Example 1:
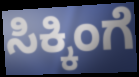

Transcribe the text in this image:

ಸಿಕ್ಕಿಂಗೆ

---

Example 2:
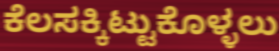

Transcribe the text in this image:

ಕೆಲಸಕ್ಕಿಟ್ಟುಕೊಳ್ಳಲು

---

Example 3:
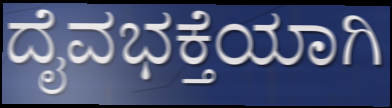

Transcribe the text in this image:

ದೈವಭಕ್ತೆಯಾಗಿ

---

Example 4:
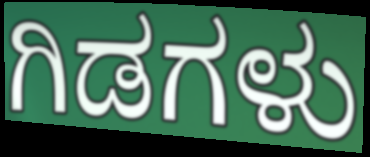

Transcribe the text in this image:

ಗಿಡಗಳು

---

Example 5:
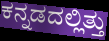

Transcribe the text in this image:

ಕನ್ನಡದಲ್ಲಿತ್ತು